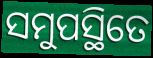
ସମୁପସ୍ଥିତେ